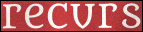
recurs